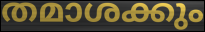
തമാശക്കും